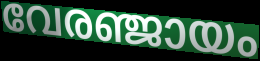
വേരഞ്ജായം